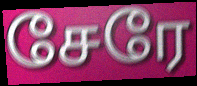
சேரே